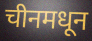
चीनमधून